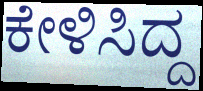
ಕೇಳಿಸಿದ್ದ